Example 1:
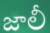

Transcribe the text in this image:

జాలీ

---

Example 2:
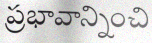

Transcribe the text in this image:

ప్రభావాన్నించి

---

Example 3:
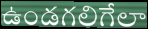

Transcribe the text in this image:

ఉండగలిగేలా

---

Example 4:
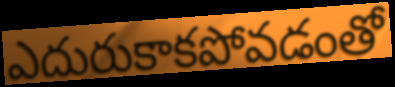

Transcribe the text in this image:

ఎదురుకాకపోవడంతో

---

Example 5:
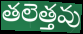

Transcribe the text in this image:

తలెత్తవు